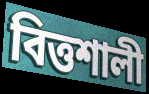
বিত্তশালী